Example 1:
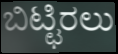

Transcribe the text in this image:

ಬಿಟ್ಟಿರಲು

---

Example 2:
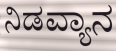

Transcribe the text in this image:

ನಿಡವ್ಯಾನ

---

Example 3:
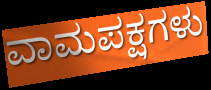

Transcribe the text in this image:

ವಾಮಪಕ್ಷಗಳು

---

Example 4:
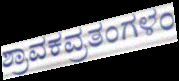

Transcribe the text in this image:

ಶ್ರಾವಕವ್ರತಂಗಳಂ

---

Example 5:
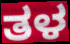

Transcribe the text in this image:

ತಳ